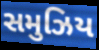
સમુઝિય